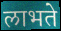
लाभते